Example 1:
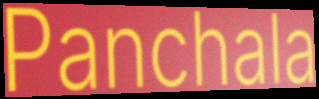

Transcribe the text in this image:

Panchala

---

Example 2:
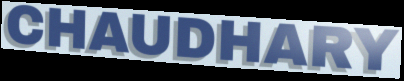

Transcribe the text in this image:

CHAUDHARY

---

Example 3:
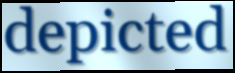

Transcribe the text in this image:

depicted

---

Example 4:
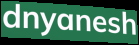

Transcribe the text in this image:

dnyanesh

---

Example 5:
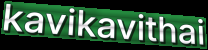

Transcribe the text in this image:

kavikavithai